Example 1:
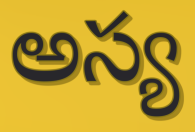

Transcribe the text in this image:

అస్య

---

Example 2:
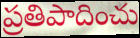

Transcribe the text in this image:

ప్రతిపాదించు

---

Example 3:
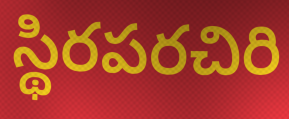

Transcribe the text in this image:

స్థిరపరచిరి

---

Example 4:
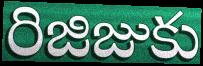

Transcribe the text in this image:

రిజిజుకు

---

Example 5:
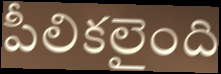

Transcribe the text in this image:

పీలికలైంది